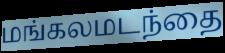
மங்கலமடந்தை